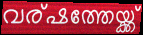
വര്ഷത്തേയ്ക്ക്